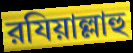
রযিয়াল্লাহু